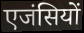
एजंसियों